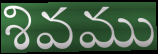
శివము